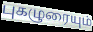
புகழுரையும்